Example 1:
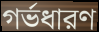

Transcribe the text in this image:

গর্ভধারণ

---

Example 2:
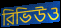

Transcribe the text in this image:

রিভিউও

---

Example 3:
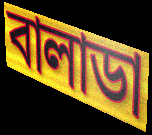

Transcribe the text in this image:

বালাডা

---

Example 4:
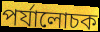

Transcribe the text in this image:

পর্যালোচক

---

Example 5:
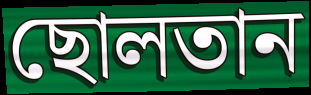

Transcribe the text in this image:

ছোলতান